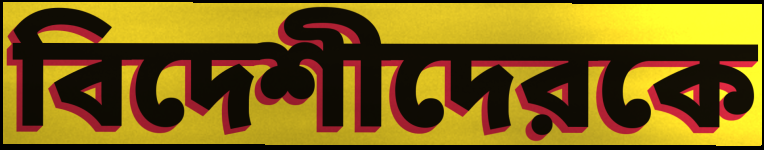
বিদেশীদেরকে